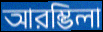
আরম্ভিলা